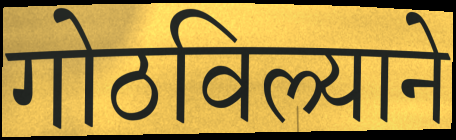
गोठविल्याने